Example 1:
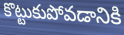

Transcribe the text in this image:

కొట్టుకుపోవడానికి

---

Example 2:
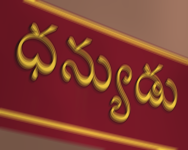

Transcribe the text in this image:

ధన్యుడు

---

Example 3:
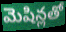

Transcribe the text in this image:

మెషిన్లతో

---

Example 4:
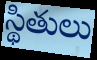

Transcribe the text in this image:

స్థితులు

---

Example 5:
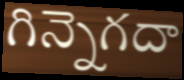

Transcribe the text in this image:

గిన్నెగదా